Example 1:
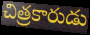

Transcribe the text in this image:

చిత్రకారుడు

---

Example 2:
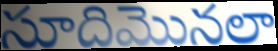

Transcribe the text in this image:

సూదిమొనలా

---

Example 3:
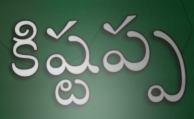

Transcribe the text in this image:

కిష్టప్ప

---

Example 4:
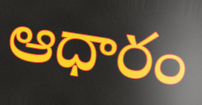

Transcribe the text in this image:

ఆధారం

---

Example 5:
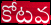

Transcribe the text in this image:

కోటవ